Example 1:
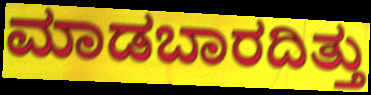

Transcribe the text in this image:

ಮಾಡಬಾರದಿತ್ತು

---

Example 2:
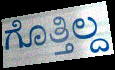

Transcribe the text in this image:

ಗೊತ್ತಿಲ್ದ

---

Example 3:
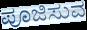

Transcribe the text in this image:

ಪೂಜಿಸುವ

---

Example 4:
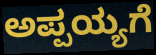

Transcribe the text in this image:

ಅಪ್ಪಯ್ಯಗೆ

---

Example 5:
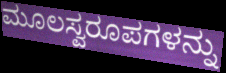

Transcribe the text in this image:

ಮೂಲಸ್ವರೂಪಗಳನ್ನು